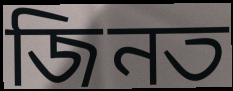
জিনত